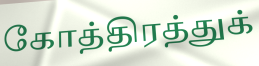
கோத்திரத்துக்